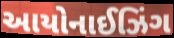
આયોનાઈઝિંગ